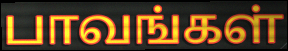
பாவங்கள்